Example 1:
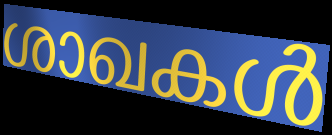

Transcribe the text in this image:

ശാഖകൾ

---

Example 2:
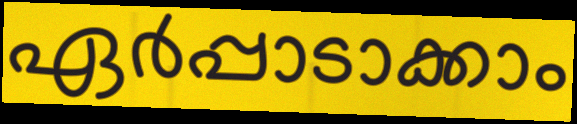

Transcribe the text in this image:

ഏർപ്പാടാക്കാം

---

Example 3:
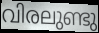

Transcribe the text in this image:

വിരലുണ്ടു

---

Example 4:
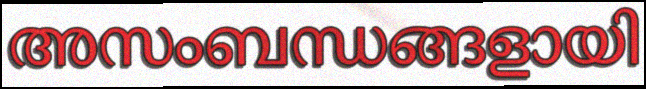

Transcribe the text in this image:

അസംബന്ധങ്ങളായി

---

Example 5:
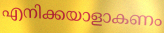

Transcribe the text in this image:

എനിക്കയാളാകണം